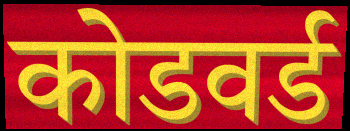
कोडवर्ड